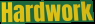
Hardwork